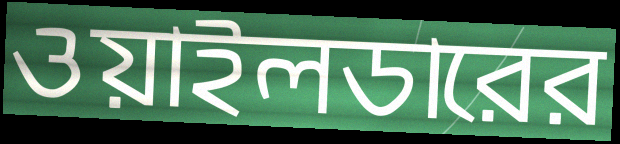
ওয়াইলডারের